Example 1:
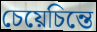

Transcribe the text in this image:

চেয়েচিন্তে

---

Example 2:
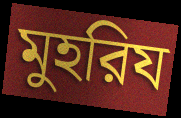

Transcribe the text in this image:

মুহরিয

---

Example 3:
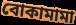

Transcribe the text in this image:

বোকামামা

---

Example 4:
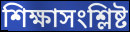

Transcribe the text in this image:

শিক্ষাসংশ্লিষ্ট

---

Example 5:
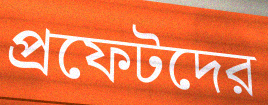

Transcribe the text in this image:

প্রফেটদের